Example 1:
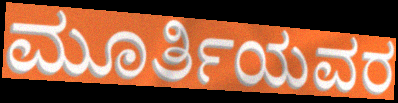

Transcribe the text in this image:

ಮೂರ್ತಿಯವರ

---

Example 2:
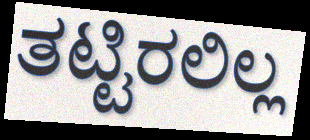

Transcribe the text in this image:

ತಟ್ಟಿರಲಿಲ್ಲ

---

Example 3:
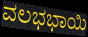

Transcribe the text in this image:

ವಲಭಭಾಯಿ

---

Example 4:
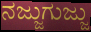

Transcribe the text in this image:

ನಜ್ಜುಗುಜ್ಜು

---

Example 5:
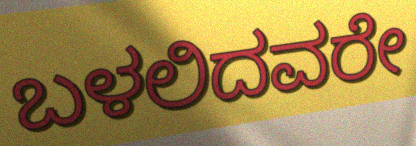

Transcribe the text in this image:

ಬಳಲಿದವರೇ